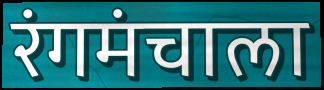
रंगमंचाला